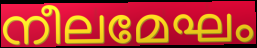
നീലമേഘം